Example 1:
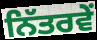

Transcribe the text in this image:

ਨਿੱਤਰਵੇਂ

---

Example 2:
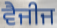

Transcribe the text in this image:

ਵੈਜੀਜ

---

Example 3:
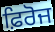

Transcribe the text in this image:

ਫ਼ਿਰੋਜ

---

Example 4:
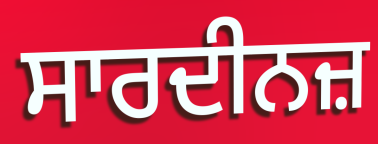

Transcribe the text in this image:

ਸਾਰਦੀਨਜ਼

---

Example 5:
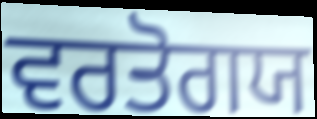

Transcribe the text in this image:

ਵਰਤੋਗਯ